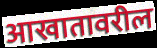
आखातावरील